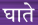
घाते